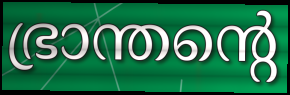
ഭ്രാന്തന്റെ